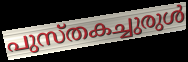
പുസ്തകച്ചുരുൾ